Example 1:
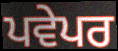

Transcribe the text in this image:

ਪਵੇਪਰ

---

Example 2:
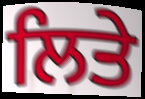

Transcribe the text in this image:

ਲਿਤੇ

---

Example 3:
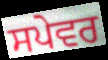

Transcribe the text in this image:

ਸਪੇਵਰ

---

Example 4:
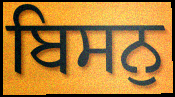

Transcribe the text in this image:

ਬਿਸਨੁ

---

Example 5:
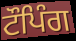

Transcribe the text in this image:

ਟੌਪਿੰਗ